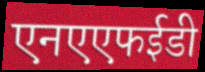
एनएएफईडी